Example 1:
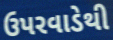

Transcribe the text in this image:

ઉપરવાડેથી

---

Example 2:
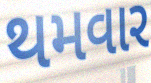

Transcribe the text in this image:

થમવાર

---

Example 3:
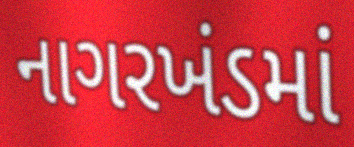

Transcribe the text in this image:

નાગરખંડમાં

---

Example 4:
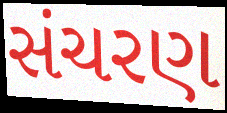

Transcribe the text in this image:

સંચરણ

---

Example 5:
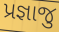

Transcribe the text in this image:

પ્રજ્ઞાજુ